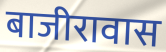
बाजीरावास